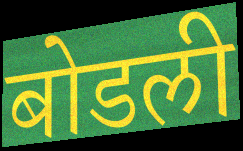
बोडली